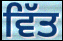
ਵਿੱਤ